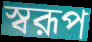
স্বরূপ